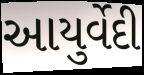
આયુર્વેદી